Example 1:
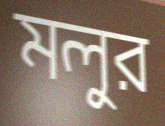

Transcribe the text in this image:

মলুর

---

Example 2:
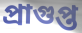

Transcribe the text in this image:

প্রাগুপ্ত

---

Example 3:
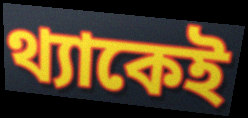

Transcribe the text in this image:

থ্যাকেই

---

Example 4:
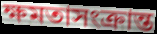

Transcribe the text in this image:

ক্ষমতাসংক্রান্ত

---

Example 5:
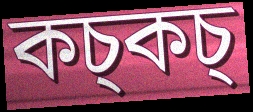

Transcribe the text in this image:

কচ্কচ্